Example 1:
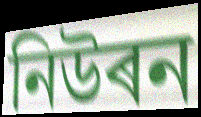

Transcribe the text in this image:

নিউৰন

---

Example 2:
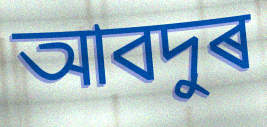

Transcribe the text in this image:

আবদুৰ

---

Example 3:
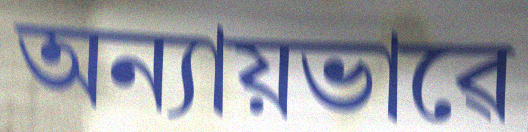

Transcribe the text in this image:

অন্যায়ভাৱে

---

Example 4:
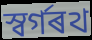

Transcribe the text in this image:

স্বৰ্গৰথ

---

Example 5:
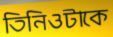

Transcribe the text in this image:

তিনিওটাকে